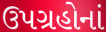
ઉપગ્રહોનાં